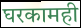
घरकामही